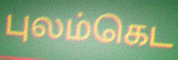
புலம்கெட